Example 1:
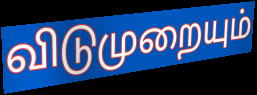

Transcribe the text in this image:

விடுமுறையும்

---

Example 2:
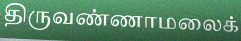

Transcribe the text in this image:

திருவண்ணாமலைக்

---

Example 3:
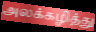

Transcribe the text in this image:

அலக்கழித்து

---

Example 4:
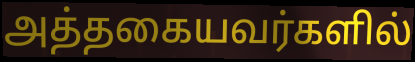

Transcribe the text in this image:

அத்தகையவர்களில்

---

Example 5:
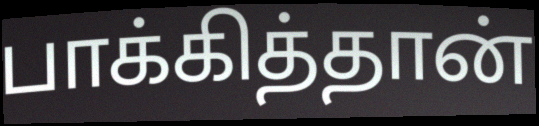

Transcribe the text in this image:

பாக்கித்தான்